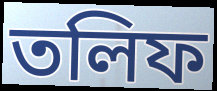
তলিফ